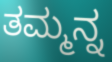
ತಮ್ಮನ್ನ